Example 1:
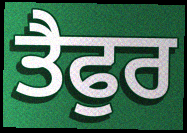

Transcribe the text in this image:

ਤੈਫੁਰ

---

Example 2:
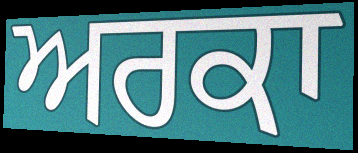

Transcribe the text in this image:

ਅਰਕਾ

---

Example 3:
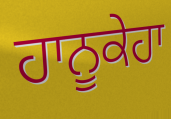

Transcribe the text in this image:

ਹਾਨੂਕੇਹਾ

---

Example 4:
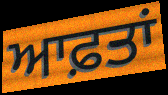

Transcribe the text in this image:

ਆਫ਼ਤਾਂ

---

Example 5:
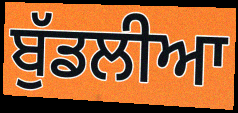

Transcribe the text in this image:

ਬੁੱਡਲੀਆ